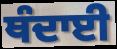
ਥੰਦਾਈ